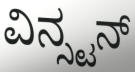
ವಿನ್ಸ್ಟನ್